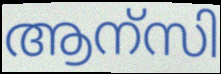
ആന്സി